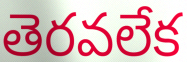
తెరవలేక